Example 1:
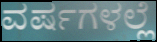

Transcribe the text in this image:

ವರ್ಷಗಳಲ್ಲೆ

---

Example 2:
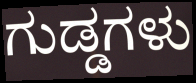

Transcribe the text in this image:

ಗುಡ್ಡಗಳು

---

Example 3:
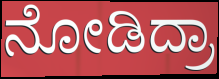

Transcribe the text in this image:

ನೋಡಿದ್ರಾ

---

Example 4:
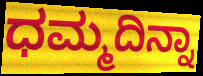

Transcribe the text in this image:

ಧಮ್ಮದಿನ್ನಾ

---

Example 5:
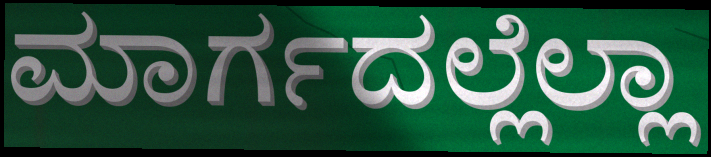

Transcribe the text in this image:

ಮಾರ್ಗದಲ್ಲೆಲ್ಲಾ